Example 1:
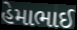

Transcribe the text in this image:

હેમાભાઈ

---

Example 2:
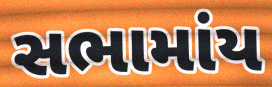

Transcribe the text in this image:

સભામાંય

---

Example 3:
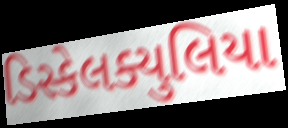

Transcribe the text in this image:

ડિસ્કેલક્યુલિયા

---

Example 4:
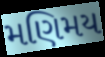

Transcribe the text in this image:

મણિમય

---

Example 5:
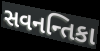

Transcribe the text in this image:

સવનન્તિકા